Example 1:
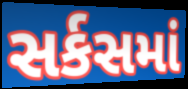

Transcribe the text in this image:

સર્કસમાં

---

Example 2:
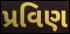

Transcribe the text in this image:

પ્રવિણ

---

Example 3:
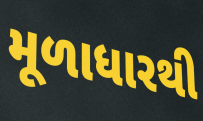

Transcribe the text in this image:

મૂળાધારથી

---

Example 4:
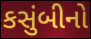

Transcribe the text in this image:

કસુંબીનો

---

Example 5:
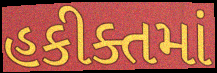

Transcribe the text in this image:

હકીક્તમાં